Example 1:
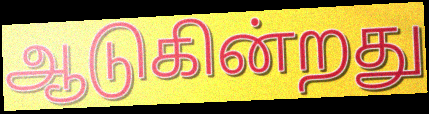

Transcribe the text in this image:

ஆடுகின்றது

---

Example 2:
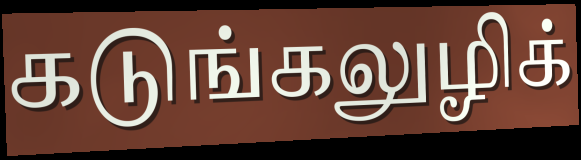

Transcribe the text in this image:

கடுங்கலுழிக்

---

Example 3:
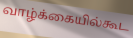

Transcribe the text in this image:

வாழ்க்கையில்கூட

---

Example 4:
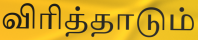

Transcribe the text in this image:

விரித்தாடும்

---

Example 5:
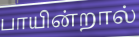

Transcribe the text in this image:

பாயின்றால்